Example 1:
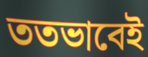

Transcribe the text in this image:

ততভাবেই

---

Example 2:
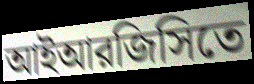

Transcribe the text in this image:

আইআরজিসিতে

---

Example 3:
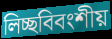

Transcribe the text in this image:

লিচ্ছবিবংশীয়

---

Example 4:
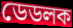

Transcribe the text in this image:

ডেডলক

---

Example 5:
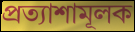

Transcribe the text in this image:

প্রত্যাশামূলক